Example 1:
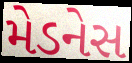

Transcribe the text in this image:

મેડનેસ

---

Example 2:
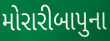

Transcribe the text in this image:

મોરારીબાપુના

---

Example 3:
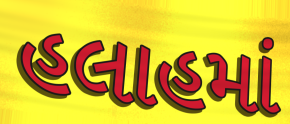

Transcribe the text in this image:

હલાહમાં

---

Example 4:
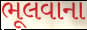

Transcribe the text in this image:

ભૂલવાના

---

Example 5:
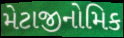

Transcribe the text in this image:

મેટાજીનોમિક